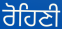
ਰੋਹਿਣੀ